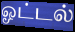
ஓட்டல்